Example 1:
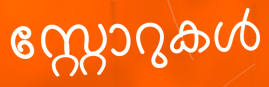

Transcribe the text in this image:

സ്റ്റോറുകൾ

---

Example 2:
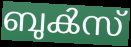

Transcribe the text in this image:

ബുൿസ്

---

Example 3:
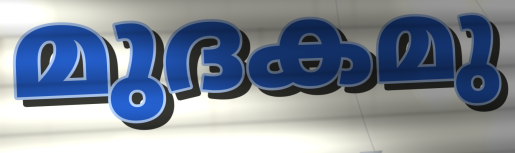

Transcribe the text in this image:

മുദകമു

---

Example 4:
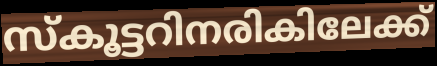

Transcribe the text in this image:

സ്കൂട്ടറിനരികിലേക്ക്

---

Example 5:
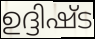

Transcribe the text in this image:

ഉദ്ദിഷ്ട